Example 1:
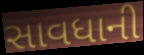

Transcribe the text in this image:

સાવધાની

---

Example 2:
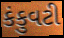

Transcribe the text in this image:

કંકુવટી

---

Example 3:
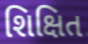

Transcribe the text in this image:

શિક્ષિત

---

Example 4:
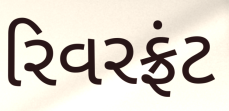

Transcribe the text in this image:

રિવરફ્રંટ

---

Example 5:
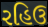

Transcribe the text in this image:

રહિઉ